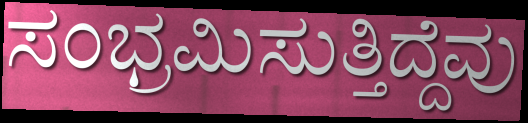
ಸಂಭ್ರಮಿಸುತ್ತಿದ್ದೆವು